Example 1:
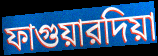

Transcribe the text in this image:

ফাগুয়ারদিয়া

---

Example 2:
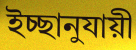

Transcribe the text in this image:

ইচ্ছানুযায়ী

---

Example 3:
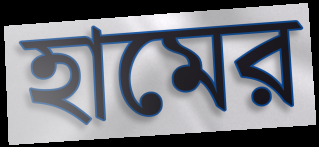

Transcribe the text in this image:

হামের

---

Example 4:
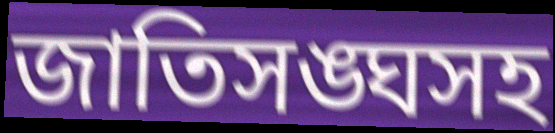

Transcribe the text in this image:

জাতিসঙ্ঘসহ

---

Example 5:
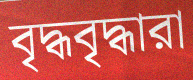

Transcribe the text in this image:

বৃদ্ধবৃদ্ধারা